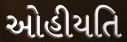
ઓહીયતિ